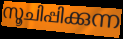
സൂചിപ്പിക്കുന്ന